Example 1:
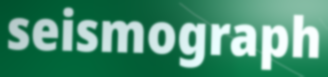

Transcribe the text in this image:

seismograph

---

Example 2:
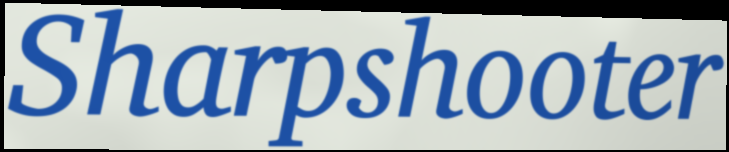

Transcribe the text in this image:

Sharpshooter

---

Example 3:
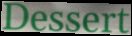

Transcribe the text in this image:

Dessert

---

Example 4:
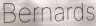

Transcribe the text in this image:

Bernards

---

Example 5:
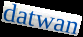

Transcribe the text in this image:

datwan